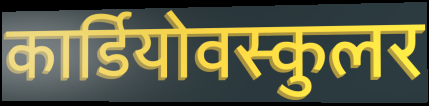
कार्डियोवस्कुलर